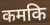
कमकि